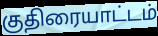
குதிரையாட்டம்